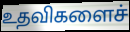
உதவிகளைச்